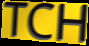
TCH